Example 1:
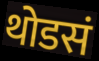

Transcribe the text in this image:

थोडसं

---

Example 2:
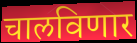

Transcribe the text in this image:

चालविणार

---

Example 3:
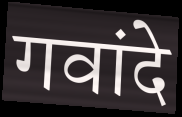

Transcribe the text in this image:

गवांदे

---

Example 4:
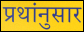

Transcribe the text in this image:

प्रथांनुसार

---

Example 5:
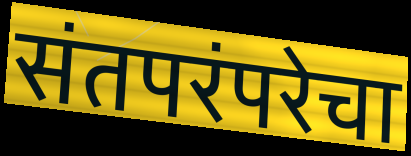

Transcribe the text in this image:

संतपरंपरेचा